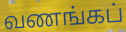
வணங்கப்